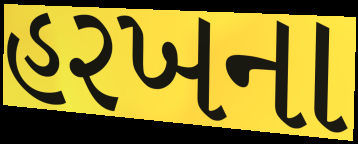
હરખના